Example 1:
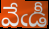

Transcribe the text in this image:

వేఁడీ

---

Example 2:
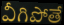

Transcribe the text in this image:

వీగిపోతే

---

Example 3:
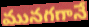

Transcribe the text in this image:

మునగగానే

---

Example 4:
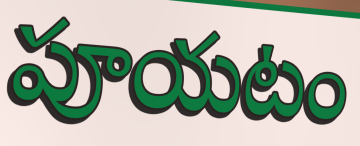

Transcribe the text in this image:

పూయటం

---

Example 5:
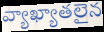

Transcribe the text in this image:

వ్యాఖ్యాతలైన